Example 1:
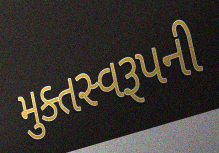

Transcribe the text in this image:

મુક્તસ્વરૂપની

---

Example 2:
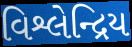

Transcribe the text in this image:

વિશ્લેન્દ્રિય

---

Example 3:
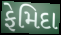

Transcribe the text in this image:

ફેમિદા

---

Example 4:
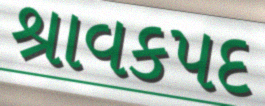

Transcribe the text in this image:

શ્રાવકપદ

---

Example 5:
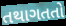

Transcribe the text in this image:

તથાગતતો